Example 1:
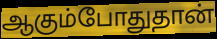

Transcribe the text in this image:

ஆகும்போதுதான்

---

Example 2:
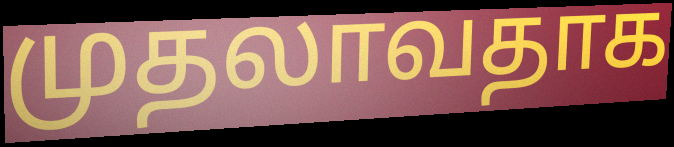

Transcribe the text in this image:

முதலாவதாக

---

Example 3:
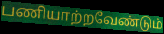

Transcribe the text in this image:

பணியாற்றவேண்டும்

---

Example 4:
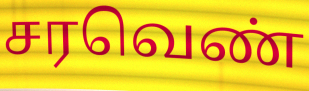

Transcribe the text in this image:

சரவெண்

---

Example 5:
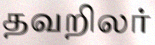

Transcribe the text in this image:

தவறிலர்